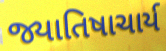
જ્યાતિષાચાર્ય